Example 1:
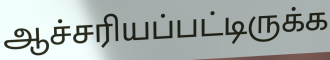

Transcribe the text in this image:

ஆச்சரியப்பட்டிருக்க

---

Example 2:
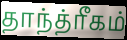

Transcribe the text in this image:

தாந்த்ரீகம்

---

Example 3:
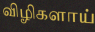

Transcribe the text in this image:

விழிகளாய்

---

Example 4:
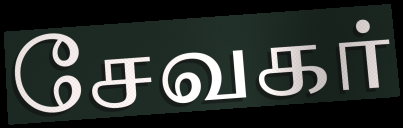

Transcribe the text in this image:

சேவகர்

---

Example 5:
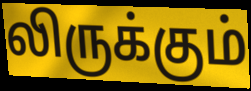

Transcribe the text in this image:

லிருக்கும்